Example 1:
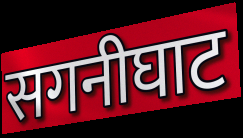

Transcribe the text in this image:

सगनीघाट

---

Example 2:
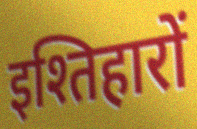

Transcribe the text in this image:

इश्तिहारों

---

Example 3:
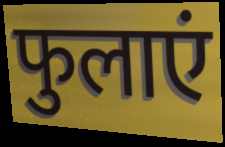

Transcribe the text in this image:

फुलाएं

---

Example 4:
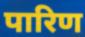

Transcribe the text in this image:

पारिण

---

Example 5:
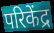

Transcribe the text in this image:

परिकेंद्र